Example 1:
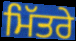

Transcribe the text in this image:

ਮਿੱਤਰੇ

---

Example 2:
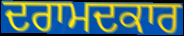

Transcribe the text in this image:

ਦਰਾਮਦਕਾਰ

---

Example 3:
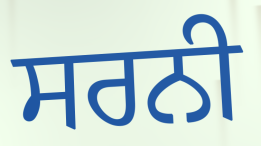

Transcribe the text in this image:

ਸਰਨੀ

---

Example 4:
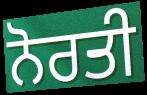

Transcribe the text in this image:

ਨੋਰਤੀ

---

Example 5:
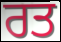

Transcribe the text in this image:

ਰਤ